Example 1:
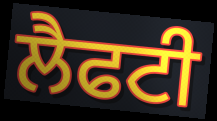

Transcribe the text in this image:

ਲੈਫਟੀ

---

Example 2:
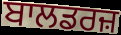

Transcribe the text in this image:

ਬਾਲਡਰਜ਼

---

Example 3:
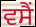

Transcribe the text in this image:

ਵਸੈਂ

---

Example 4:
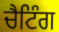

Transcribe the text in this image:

ਚੈਟਿੰਗ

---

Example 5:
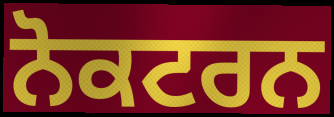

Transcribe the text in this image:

ਨੋਕਟਰਨ